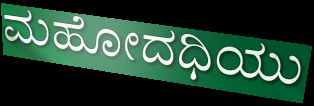
ಮಹೋದಧಿಯು